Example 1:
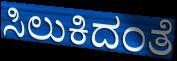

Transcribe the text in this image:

ಸಿಲುಕಿದಂತೆ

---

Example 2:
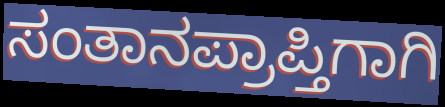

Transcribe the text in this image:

ಸಂತಾನಪ್ರಾಪ್ತಿಗಾಗಿ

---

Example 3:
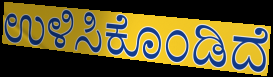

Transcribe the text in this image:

ಉಳಿಸಿಕೊಂಡಿದೆ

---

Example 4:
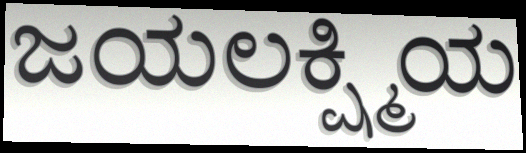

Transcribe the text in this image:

ಜಯಲಕ್ಷ್ಮಿಯ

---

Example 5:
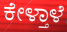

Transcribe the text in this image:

ಕೇಳ್ತಾಳೆ